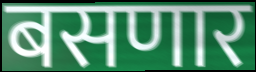
बसणार